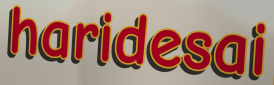
haridesai